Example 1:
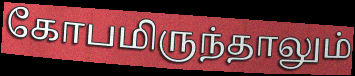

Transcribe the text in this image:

கோபமிருந்தாலும்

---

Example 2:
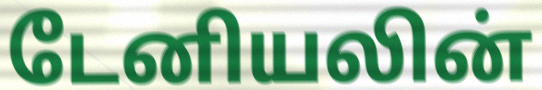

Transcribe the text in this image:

டேனியலின்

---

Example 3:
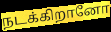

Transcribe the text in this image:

நடக்கிறானோ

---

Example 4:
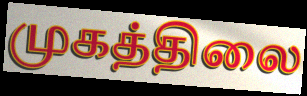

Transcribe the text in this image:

முகத்திலை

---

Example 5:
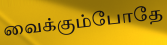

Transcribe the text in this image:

வைக்கும்போதே